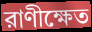
রাণীক্ষেত